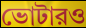
ভোটারও